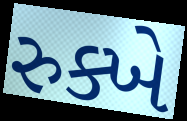
રુક્ખે